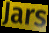
Jars